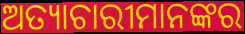
ଅତ୍ୟାଚାରୀମାନଙ୍କର